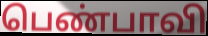
பெண்பாவி